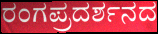
ರಂಗಪ್ರದರ್ಶನದ